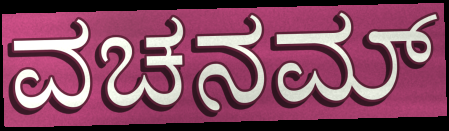
ವಚನಮ್